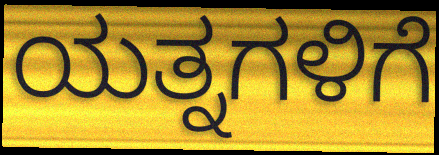
ಯತ್ನಗಳಿಗೆ